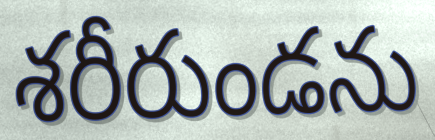
శరీరుండను